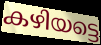
കഴിയട്ടെ